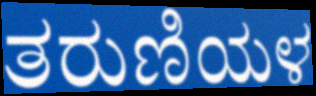
ತರುಣಿಯಳ